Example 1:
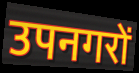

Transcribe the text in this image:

उपनगरों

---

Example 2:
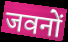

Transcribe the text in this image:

जवनों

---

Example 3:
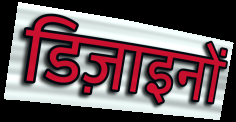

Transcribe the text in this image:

डिज़ाइनों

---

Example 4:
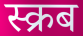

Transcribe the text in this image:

स्क्रब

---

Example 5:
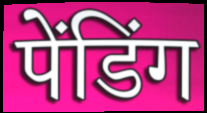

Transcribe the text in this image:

पेंडिंग